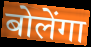
बोलेंगा